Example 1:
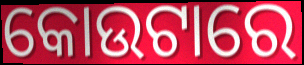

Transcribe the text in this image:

କୋଉଟାରେ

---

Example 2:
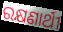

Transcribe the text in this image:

ରକ୍ଷଣାର୍ଥୀ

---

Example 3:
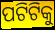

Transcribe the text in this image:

ପଟିଟିକୁ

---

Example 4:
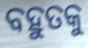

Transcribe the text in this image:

ବହୁତକୁ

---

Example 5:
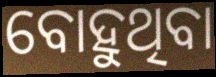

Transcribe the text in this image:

ବୋହୁଥିବା